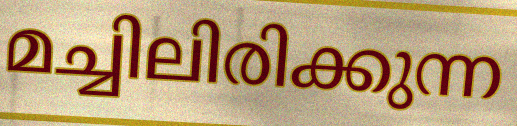
മച്ചിലിരിക്കുന്ന